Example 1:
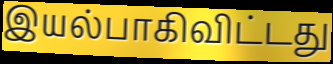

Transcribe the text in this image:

இயல்பாகிவிட்டது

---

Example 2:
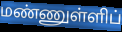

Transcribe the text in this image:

மண்ணுள்ளிப்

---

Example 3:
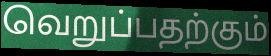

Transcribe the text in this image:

வெறுப்பதற்கும்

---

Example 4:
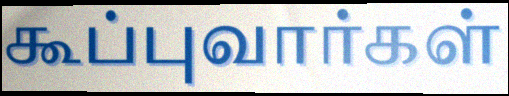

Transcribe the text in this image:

கூப்புவார்கள்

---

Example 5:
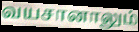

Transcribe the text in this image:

வயசானாலும்